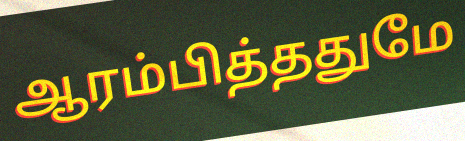
ஆரம்பித்ததுமே